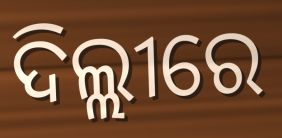
ଦିଲ୍ଲୀରେ